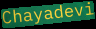
Chayadevi